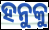
ହନୁକୁ